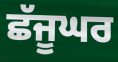
ਛੱਜੂਘਰ